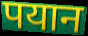
पयान